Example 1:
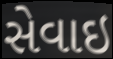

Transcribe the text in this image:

સેવાઇ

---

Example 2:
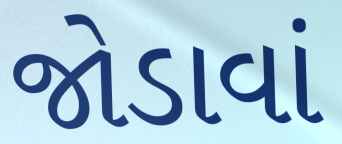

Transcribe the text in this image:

જોડાવાં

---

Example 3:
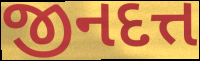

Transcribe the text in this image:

જીનદત્ત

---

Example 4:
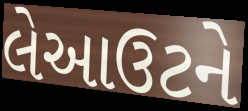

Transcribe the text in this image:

લેઆઉટને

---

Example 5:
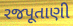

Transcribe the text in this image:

રજપૂતાણી